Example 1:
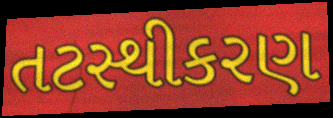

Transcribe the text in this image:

તટસ્થીકરણ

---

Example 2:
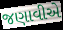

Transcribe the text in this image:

જણાવીએ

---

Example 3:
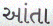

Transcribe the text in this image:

આંતા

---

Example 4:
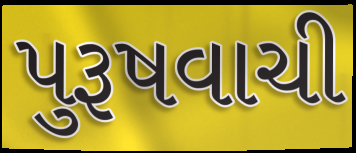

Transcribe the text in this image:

પુરૂષવાચી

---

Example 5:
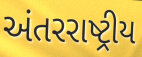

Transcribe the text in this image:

અંતરરાષ્ટ્રીય